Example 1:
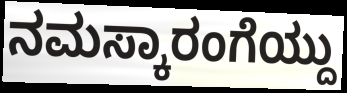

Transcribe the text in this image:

ನಮಸ್ಕಾರಂಗೆಯ್ದು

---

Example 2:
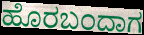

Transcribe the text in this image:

ಹೊರಬಂದಾಗ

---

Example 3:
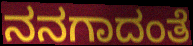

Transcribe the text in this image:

ನನಗಾದಂತೆ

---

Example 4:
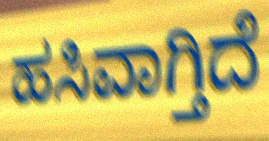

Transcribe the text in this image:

ಹಸಿವಾಗ್ತಿದೆ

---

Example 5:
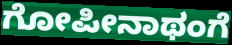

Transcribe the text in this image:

ಗೋಪೀನಾಥಂಗೆ